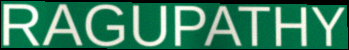
RAGUPATHY